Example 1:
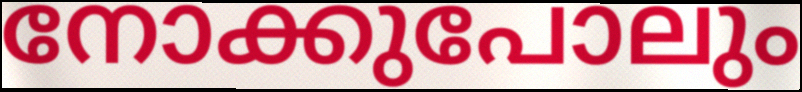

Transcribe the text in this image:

നോക്കുപോലും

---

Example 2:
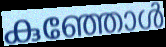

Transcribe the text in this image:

കുഞ്ഞോൾ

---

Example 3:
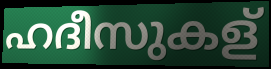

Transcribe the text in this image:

ഹദീസുകള്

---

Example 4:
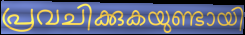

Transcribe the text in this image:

പ്രവചിക്കുകയുണ്ടായി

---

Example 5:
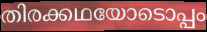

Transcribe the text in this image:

തിരക്കഥയോടൊപ്പം